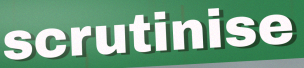
scrutinise